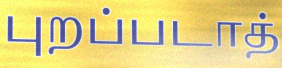
புறப்படாத்